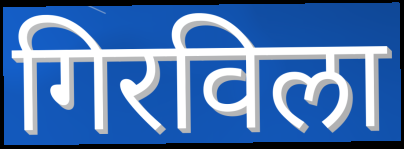
गिरविला